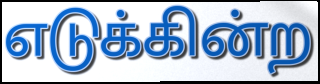
எடுக்கின்ற